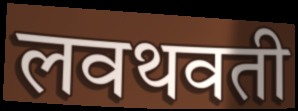
लवथवती